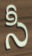
సీ